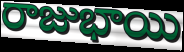
రాజుభాయి